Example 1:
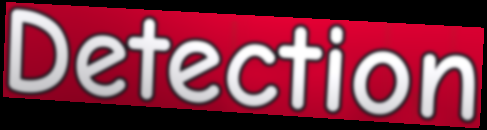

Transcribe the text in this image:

Detection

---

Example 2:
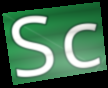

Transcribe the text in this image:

Sc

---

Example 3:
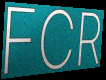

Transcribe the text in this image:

FCR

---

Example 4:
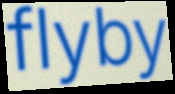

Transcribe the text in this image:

flyby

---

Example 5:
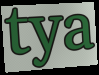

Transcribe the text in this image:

tya